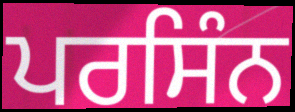
ਪਰਸਿੰਨ